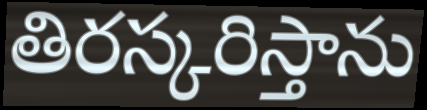
తిరస్కరిస్తాను